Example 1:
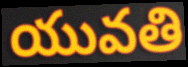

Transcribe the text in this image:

యువతి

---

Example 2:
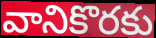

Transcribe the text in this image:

వానికొరకు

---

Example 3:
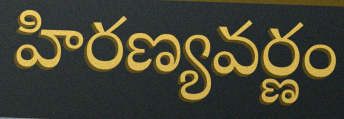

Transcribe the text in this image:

హిరణ్యవర్ణం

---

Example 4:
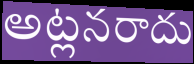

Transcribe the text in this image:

అట్లనరాదు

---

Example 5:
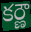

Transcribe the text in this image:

కర్ణౌ